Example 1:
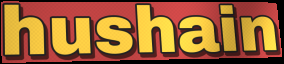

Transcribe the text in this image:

hushain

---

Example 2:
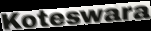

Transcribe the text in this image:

Koteswara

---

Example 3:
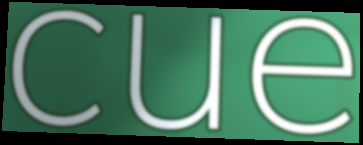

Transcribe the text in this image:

cue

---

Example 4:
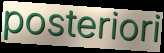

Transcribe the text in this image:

posteriori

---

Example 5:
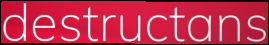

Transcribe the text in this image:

destructans